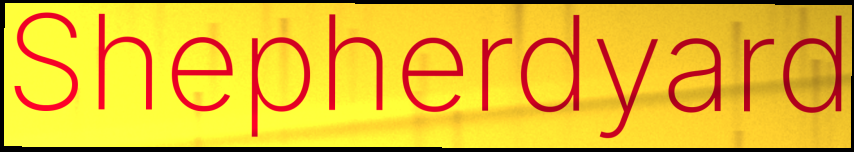
Shepherdyard